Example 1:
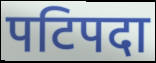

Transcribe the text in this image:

पटिपदा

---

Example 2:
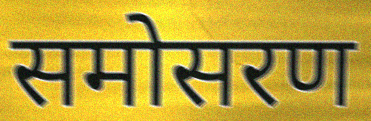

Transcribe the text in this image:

समोसरण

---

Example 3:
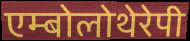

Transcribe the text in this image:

एम्बोलोथेरेपी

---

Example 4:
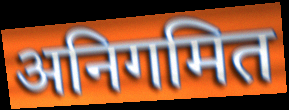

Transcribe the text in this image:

अनिगमित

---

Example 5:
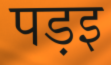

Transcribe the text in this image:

पड़इ